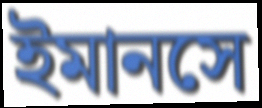
ইমানসে